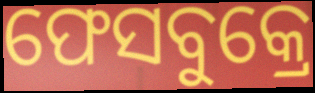
ଫେସବୁକ୍ରେ